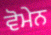
ਵੋਮੇਨ